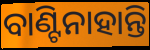
ବାଣ୍ଟିନାହାନ୍ତି